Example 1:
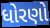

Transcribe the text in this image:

ધોરણો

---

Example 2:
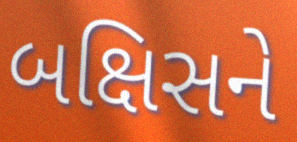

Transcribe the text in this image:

બક્ષિસને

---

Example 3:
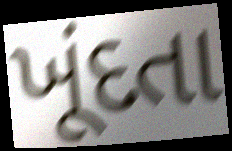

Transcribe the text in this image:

ખૂંદતા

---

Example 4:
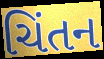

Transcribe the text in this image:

ચિંતન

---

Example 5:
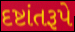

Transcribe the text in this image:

દષ્ટાંતરૂપે